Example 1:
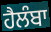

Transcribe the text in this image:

ਹੈਲੰਬਾ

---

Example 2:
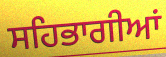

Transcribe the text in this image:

ਸਹਿਭਾਗੀਆਂ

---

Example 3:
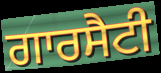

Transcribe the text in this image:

ਗਾਰਸੈਟੀ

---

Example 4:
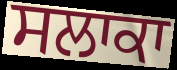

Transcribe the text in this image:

ਸਲਾਕਾ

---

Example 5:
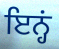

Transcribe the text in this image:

ਇਨ੍ਹਂ